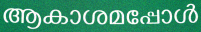
ആകാശമപ്പോൾ